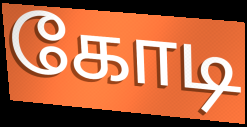
கோடி